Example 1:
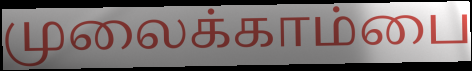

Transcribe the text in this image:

முலைக்காம்பை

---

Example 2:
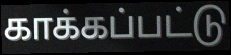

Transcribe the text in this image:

காக்கப்பட்டு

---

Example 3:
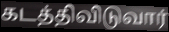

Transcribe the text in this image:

கடத்திவிடுவார்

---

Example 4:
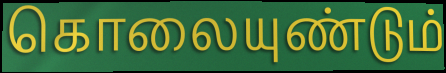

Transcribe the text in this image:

கொலையுண்டும்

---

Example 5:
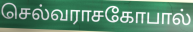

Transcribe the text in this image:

செல்வராசகோபால்